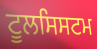
ਟੂਲਸਿਸਟਮ